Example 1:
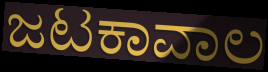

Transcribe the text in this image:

ಜಟಕಾವಾಲ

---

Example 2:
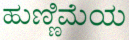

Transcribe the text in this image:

ಹುಣ್ಣಿಮೆಯ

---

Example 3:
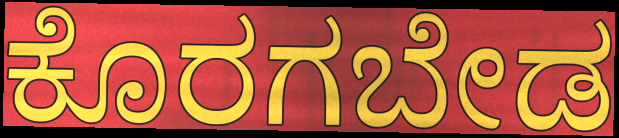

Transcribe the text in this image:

ಕೊರಗಬೇಡ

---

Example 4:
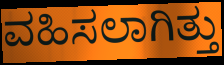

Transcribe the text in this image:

ವಹಿಸಲಾಗಿತ್ತು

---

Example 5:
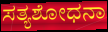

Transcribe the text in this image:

ಸತ್ಯಶೋಧನಾ